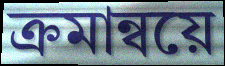
ক্রমান্বয়ে